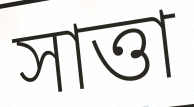
সাত্তা